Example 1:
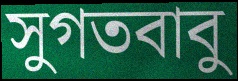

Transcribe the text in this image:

সুগতবাবু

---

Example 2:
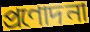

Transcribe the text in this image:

প্রণোদনা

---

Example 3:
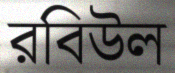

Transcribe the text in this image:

রবিউল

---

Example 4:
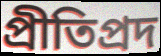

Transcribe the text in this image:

প্রীতিপ্রদ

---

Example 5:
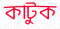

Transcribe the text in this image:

কাটুক